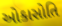
ઓકાસોતિ